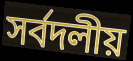
সৰ্বদলীয়